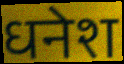
धनेश